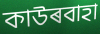
কাউৰবাহা